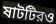
ষাটটিরও